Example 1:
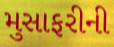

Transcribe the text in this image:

મુસાફરીની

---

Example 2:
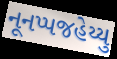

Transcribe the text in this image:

નૂનપ્પજહેય્યુ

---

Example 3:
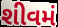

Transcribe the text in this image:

શીવમં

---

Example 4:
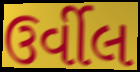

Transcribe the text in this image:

ઉર્વીલ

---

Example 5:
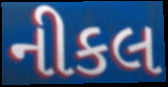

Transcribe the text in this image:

નીકલ